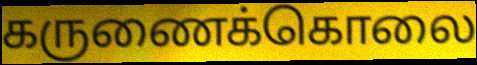
கருணைக்கொலை